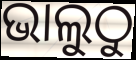
ଭାଲୁଠୁ